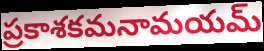
ప్రకాశకమనామయమ్